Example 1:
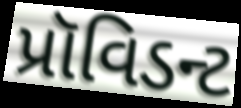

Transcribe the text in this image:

પ્રૉવિડન્ટ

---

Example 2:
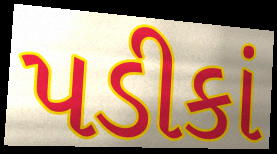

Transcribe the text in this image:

પડીકાં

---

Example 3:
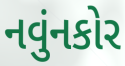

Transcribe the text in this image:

નવુંનકોર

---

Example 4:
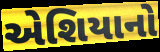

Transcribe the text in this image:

એશિયાનો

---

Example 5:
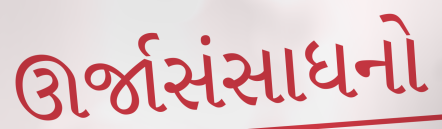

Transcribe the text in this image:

ઊર્જાસંસાધનો